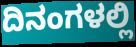
ದಿನಂಗಳಲ್ಲಿ